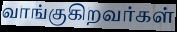
வாங்குகிறவர்கள்